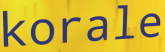
korale